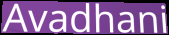
Avadhani